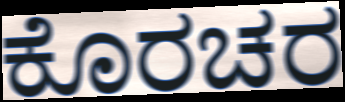
ಕೊರಚರ